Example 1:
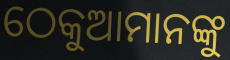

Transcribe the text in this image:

ଠେକୁଆମାନଙ୍କୁ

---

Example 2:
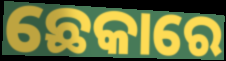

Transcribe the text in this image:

ଛେକାରେ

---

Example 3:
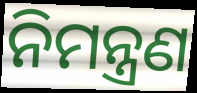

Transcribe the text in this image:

ନିମନ୍ତ୍ରଣ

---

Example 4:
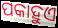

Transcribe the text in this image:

ପକାହୁଏ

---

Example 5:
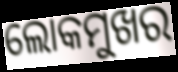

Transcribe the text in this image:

ଲୋକମୁଖର